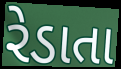
રેડાતા